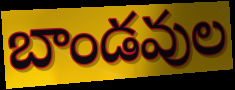
బాండవుల